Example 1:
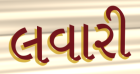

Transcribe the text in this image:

લવારી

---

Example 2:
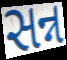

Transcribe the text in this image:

સન્ન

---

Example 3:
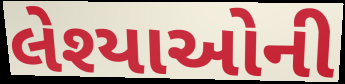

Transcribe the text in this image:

લેશ્યાઓની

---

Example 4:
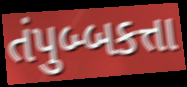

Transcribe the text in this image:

તંપુબ્બકત્તા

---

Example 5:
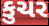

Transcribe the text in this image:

કુચર